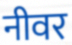
नीवर